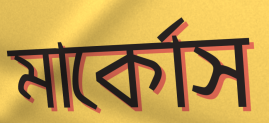
মার্কোস